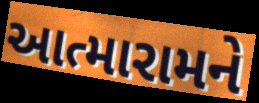
આત્મારામને